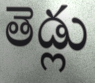
తెడ్లు